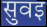
सुवइ